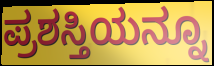
ಪ್ರಶಸ್ತಿಯನ್ನೂ